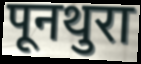
पूनथुरा